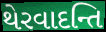
થેરવાદન્તિ